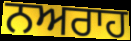
ਨਅਰਾਹ